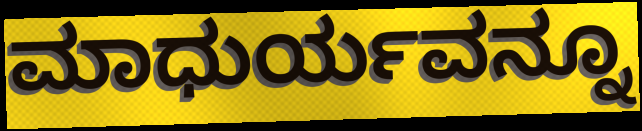
ಮಾಧುರ್ಯವನ್ನೂ